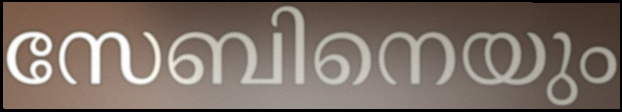
സേബിനെയും